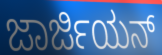
ಜಾರ್ಜಿಯನ್